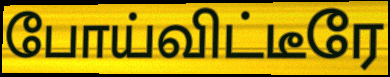
போய்விட்டீரே